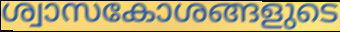
ശ്വാസകോശങ്ങളുടെ